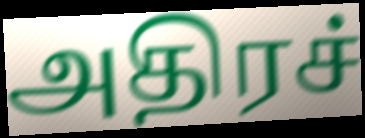
அதிரச்